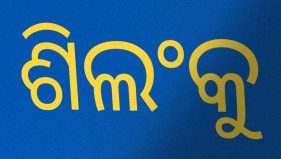
ଶିଲଂକୁ